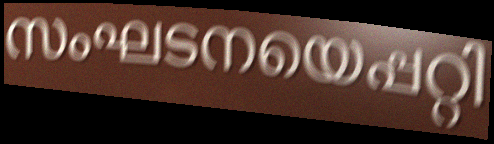
സംഘടനയെപ്പറ്റി